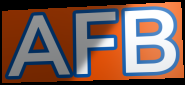
AFB